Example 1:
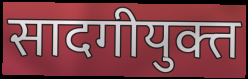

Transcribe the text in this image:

सादगीयुक्त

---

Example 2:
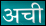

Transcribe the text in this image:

अची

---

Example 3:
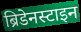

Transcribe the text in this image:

ब्रिडेनस्टाइन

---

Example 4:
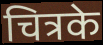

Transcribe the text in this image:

चित्रके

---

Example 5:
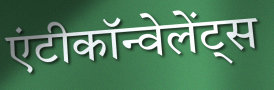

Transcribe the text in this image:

एंटीकॉन्वेलेंट्स